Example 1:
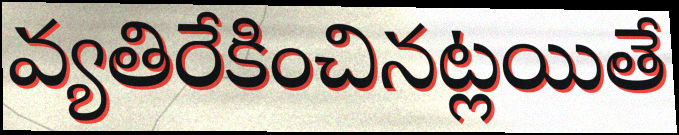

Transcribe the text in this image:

వ్యతిరేకించినట్లయితే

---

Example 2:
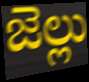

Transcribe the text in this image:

జెల్లు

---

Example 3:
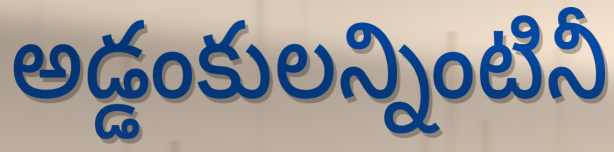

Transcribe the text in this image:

అడ్డంకులన్నింటినీ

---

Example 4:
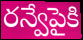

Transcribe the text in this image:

రన్వేపైకి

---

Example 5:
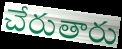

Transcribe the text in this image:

చేరుతారు